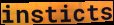
insticts